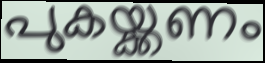
പുകയ്ക്കണം